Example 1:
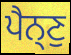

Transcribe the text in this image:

ਪੈਨ੍ਣੁ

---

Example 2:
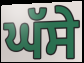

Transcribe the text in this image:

ਘੱਸੇ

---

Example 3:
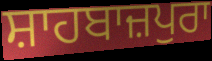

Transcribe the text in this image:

ਸ਼ਾਹਬਾਜ਼ਪੁਰਾ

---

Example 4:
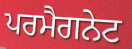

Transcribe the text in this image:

ਪਰਮੈਗਨੇਟ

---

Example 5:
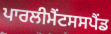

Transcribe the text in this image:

ਪਾਰਲੀਮੈਂਟਸਸਪੈਂਡ